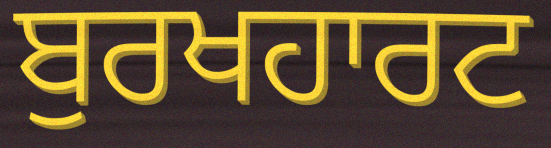
ਬੁਰਖਹਾਰਟ